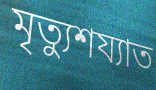
মৃত্যুশয্যাত